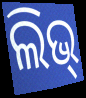
ଲିଭ୍